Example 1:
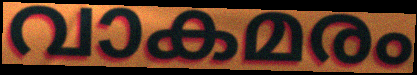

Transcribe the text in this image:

വാകമരം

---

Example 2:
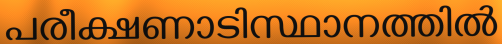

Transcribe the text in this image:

പരീക്ഷണാടിസ്ഥാനത്തിൽ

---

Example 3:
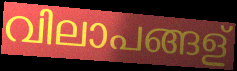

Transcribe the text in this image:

വിലാപങ്ങള്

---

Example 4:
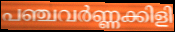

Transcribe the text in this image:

പഞ്ചവർണ്ണക്കിളി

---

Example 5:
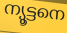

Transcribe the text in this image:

ന്യൂട്ടനെ